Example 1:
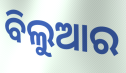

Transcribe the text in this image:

ବିଲୁଆର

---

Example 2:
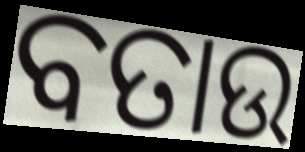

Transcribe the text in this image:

ବତାଉ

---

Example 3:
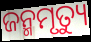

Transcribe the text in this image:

ଜନ୍ମମୃତ୍ୟୁ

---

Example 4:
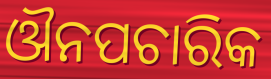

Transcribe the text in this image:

ଔନପଚାରିକ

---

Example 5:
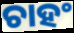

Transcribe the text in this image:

ଚାହଂ